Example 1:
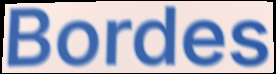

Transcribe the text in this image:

Bordes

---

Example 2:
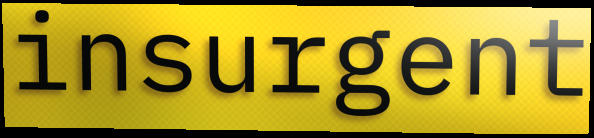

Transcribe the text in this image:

insurgent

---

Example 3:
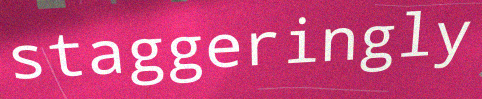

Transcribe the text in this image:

staggeringly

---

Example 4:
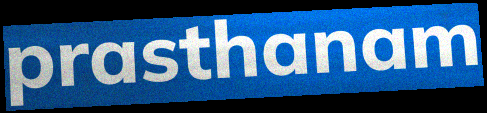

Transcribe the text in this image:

prasthanam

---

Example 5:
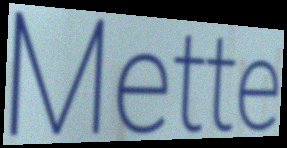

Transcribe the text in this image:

Mette